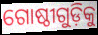
ଗୋଷ୍ଠୀଗୁଡ଼ିକୁ